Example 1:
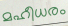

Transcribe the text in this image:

മഹീധരം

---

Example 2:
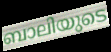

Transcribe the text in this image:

ബാലിയുടെ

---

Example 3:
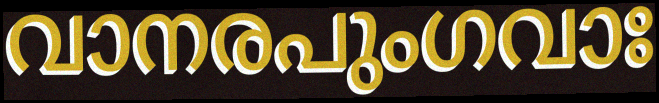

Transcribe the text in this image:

വാനരപുംഗവാഃ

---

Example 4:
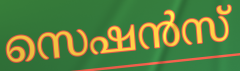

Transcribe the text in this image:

സെഷൻസ്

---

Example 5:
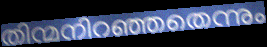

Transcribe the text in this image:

തിന്മനിറഞ്ഞതെന്നും